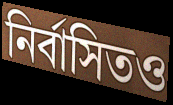
নির্বাসিতও